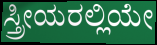
ಸ್ತ್ರೀಯರಲ್ಲಿಯೇ